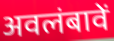
अवलंबावें